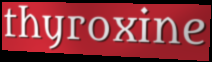
thyroxine